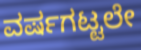
ವರ್ಷಗಟ್ಟಲೇ